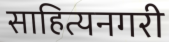
साहित्यनगरी